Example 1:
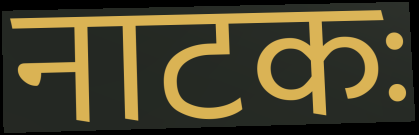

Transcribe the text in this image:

नाटकः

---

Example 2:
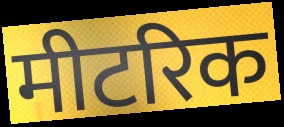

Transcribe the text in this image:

मीटरिक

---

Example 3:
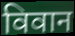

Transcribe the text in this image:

विवान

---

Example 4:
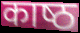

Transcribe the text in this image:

काष्‍ठ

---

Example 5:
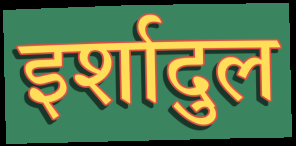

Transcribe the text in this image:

इर्शादुल